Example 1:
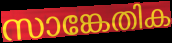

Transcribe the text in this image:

സാങ്കേതിക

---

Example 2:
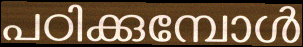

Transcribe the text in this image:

പഠിക്കുമ്പോൾ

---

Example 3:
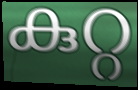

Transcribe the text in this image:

കുറ്റ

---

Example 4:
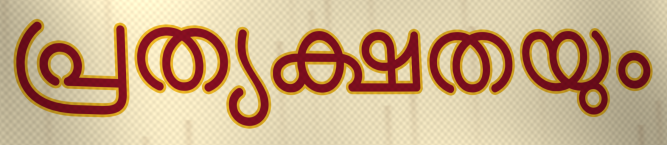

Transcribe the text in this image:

പ്രത്യക്ഷതയും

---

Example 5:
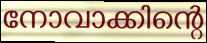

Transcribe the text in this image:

നോവാക്കിന്റെ